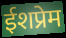
ईशप्रेम